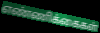
எண்ணிக்கைகள்